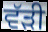
ਵੱੜੀ